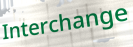
Interchange